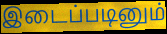
இடைப்படினும்